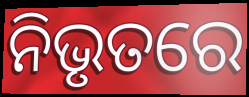
ନିଭୃତରେ